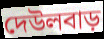
দেউলবাড়